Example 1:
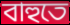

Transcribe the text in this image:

বাহুতে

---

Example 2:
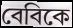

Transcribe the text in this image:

বেবিকে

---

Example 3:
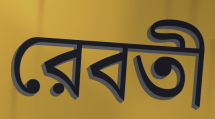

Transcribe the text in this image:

রেবতী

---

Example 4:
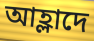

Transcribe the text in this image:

আহ্লাদে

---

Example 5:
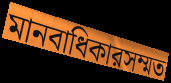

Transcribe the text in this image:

মানবাধিকারসম্মত